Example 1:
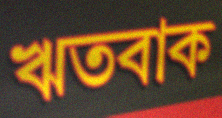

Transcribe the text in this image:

ঋতবাক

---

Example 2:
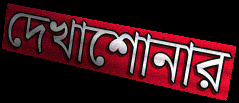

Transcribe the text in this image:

দেখাশোনার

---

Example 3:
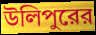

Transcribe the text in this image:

উলিপুরের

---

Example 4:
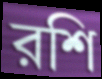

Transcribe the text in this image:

রশি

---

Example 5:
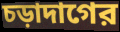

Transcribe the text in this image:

চড়াদাগের